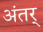
अंतर्